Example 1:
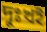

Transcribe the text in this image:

দুঃখই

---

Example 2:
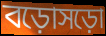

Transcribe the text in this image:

বড়োসড়ো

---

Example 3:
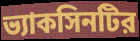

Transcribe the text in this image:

ভ্যাকসিনটির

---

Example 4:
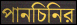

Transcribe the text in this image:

পানচিনির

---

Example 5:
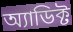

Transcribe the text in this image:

অ্যাডিক্ট